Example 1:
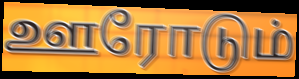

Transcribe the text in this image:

ஊரோடும்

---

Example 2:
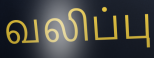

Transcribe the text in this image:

வலிப்பு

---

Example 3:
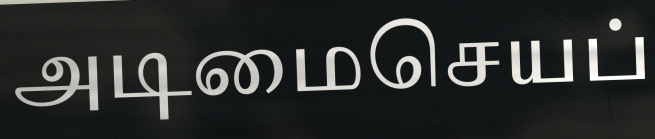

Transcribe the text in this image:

அடிமைசெயப்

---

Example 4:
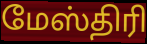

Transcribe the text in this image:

மேஸ்திரி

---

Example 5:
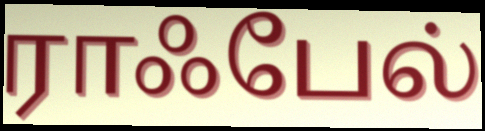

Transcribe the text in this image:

ராஃபேல்